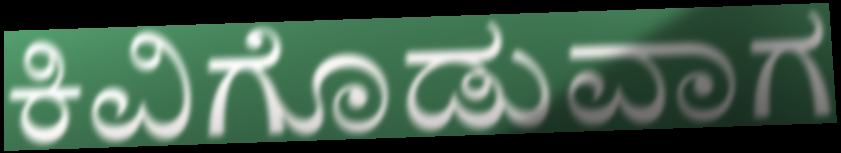
ಕಿವಿಗೊಡುವಾಗ